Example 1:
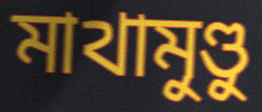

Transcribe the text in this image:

মাথামুণ্ডু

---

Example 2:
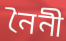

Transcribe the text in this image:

নৈনী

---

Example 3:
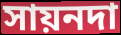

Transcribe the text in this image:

সায়নদা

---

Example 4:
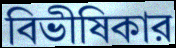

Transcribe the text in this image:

বিভীষিকার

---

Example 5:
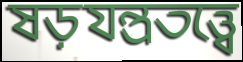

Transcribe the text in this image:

ষড়যন্ত্রতত্ত্বে